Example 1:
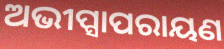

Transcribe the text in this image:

ଅଭୀପ୍ସାପରାୟଣ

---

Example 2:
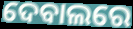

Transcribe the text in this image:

ଦେବାଲରେ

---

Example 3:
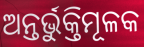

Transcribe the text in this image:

ଅନ୍ତର୍ଭୁକ୍ତିମୂଳକ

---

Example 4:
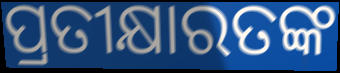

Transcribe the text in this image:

ପ୍ରତୀକ୍ଷାରତଙ୍କ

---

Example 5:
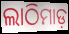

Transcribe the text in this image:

ଲାଠିମାଡ଼